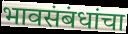
भावसंबंधांचा